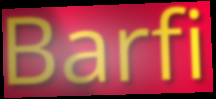
Barfi